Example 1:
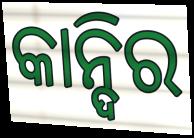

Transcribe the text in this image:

କାନ୍ଦିର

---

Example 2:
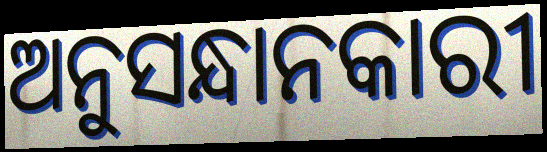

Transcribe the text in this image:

ଅନୁସନ୍ଧାନକାରୀ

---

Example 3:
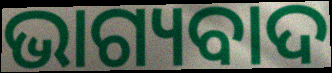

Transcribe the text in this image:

ଭାଗ୍ୟବାଦ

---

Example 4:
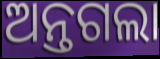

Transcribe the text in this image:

ଅନ୍ତଗଲା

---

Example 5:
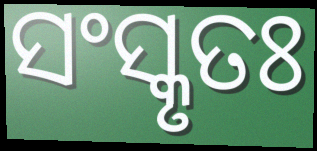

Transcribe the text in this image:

ସଂସ୍କୃତଃ